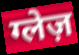
ग्लेज़